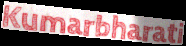
Kumarbharati